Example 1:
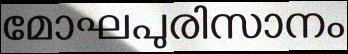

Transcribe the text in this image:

മോഘപുരിസാനം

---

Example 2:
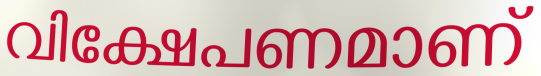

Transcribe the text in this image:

വിക്ഷേപണമാണ്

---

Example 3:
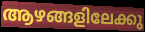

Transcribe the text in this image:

ആഴങ്ങളിലേക്കു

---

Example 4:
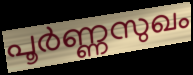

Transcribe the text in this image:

പൂർണ്ണസുഖം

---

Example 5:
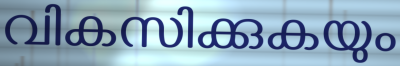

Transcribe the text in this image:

വികസിക്കുകയും